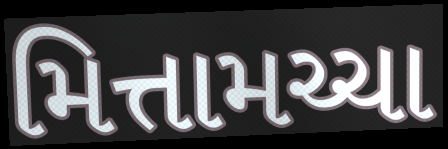
મિત્તામચ્ચા